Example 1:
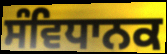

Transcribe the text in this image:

ਸੰਵਿਧਾਨਕ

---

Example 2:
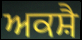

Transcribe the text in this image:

ਅਕਸ਼ੈ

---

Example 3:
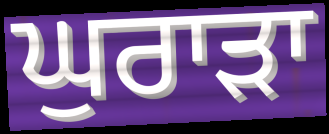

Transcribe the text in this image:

ਘੁਰਾੜਾ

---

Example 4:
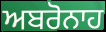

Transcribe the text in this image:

ਅਬਰੋਨਾਹ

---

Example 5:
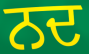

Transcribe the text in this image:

ਨਦ